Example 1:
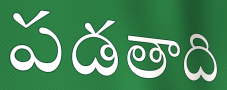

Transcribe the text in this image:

పడతాది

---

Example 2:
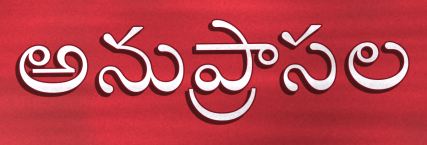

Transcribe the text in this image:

అనుప్రాసల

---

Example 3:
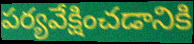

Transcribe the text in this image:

పర్యవేక్షించడానికి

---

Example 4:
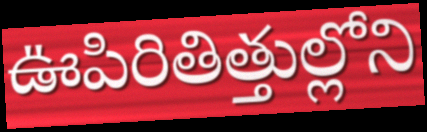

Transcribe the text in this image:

ఊపిరితిత్తుల్లోని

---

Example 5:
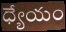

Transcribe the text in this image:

ధ్యేయం